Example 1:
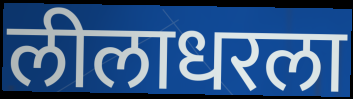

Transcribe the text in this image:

लीलाधरला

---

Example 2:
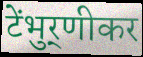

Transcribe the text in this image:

टेंभुर्णीकर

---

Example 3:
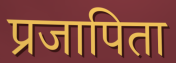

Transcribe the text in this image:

प्रजापिता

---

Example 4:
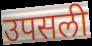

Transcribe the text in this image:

उपसली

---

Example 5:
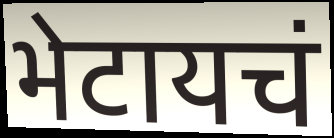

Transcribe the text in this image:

भेटायचं